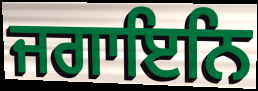
ਜਗਾਇਨਿ